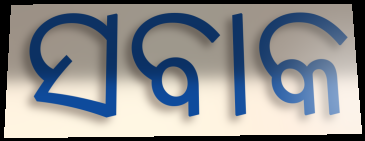
ସବାକ